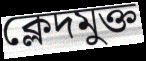
ক্লেদমুক্ত